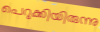
പെറുക്കിയിരുന്നു